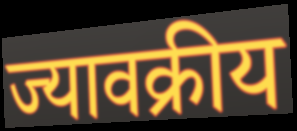
ज्यावक्रीय